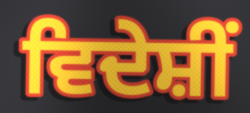
ਵਿਦੇਸ਼ੀਂ